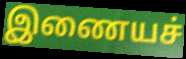
இணையச்